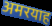
अमरयाह